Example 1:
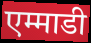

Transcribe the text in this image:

एम्माडी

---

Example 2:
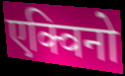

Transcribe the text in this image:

एक्विनो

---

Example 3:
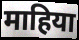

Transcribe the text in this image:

माहिया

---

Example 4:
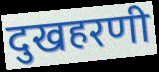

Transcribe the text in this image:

दुखहरणी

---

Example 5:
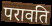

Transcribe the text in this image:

परावति